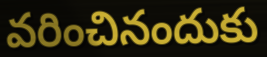
వరించినందుకు